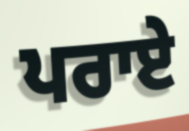
ਪਰਾਏ